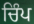
ਚਿੰਪ